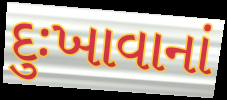
દુઃખાવાનાં